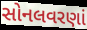
સોનલવરણાં